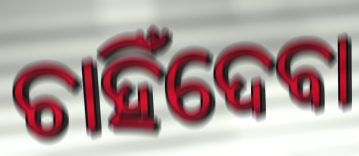
ଚାହିଁଦେବା